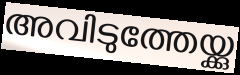
അവിടുത്തേയ്ക്കു